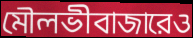
মৌলভীবাজারেও